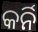
କର୍ନି